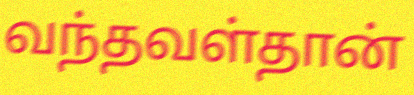
வந்தவள்தான்